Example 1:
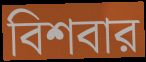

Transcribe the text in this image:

বিশবার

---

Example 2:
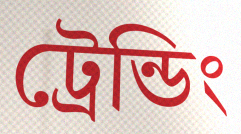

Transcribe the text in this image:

ট্রেন্ডিং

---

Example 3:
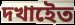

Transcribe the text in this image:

দখাইেত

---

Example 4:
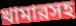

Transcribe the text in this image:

খামারসহ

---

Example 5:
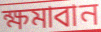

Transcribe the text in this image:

ক্ষমাবান